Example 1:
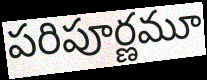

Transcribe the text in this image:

పరిపూర్ణమూ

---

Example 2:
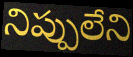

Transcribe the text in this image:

నిప్పులేని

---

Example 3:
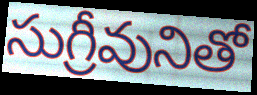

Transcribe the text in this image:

సుగ్రీవునితో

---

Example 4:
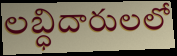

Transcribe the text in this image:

లబ్ధిదారులలో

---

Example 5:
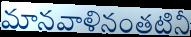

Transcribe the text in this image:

మానవాళినంతటినీ